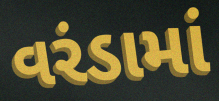
વરંડામાં